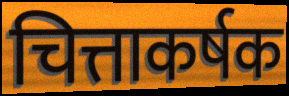
चित्ताकर्षक